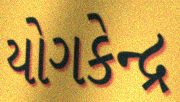
યોગકેન્દ્ર